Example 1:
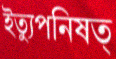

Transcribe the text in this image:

ইত্যুপনিষত্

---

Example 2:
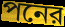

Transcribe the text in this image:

পনের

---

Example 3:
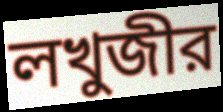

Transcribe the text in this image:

লখুজীর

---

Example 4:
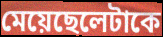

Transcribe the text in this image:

মেয়েছেলেটাকে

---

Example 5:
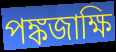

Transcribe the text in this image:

পঙ্কজাক্ষি